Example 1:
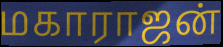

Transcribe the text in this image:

மகாராஜன்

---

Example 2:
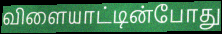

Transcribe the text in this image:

விளையாட்டின்போது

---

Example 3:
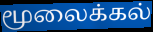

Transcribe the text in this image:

மூலைக்கல்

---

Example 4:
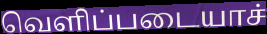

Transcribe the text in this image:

வெளிப்படையாச்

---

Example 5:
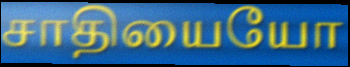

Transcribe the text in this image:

சாதியையோ